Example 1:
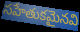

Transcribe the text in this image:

సహేతుకమైనవి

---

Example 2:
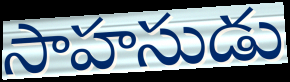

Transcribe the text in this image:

సాహసుడు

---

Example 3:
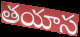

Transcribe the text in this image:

తయాస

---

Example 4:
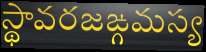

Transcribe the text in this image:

స్థావరజఙ్గమస్య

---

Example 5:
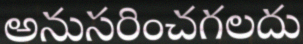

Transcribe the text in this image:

అనుసరించగలదు